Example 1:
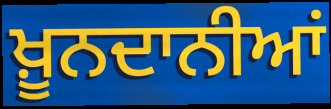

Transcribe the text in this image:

ਖ਼ੂਨਦਾਨੀਆਂ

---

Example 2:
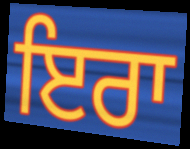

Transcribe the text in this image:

ਇਰਾ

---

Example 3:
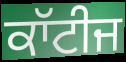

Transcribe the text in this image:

ਕਾੱਟੀਜ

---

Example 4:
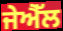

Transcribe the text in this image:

ਜੇਐੱਲ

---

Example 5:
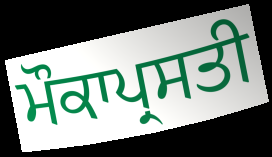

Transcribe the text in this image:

ਮੌਕਾਪ੍ਰਸਤੀ